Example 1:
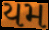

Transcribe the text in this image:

યમ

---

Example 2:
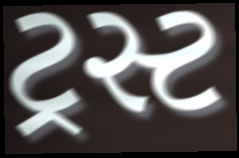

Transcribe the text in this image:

ટ્રસ્ટ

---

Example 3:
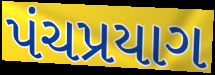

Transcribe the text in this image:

પંચપ્રયાગ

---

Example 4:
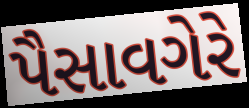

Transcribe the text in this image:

પૈસાવગેરે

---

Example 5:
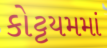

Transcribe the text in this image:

કોટ્ટયમમાં